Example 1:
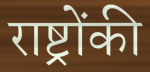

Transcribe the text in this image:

राष्ट्रोंकी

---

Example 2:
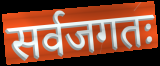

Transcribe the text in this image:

सर्वजगतः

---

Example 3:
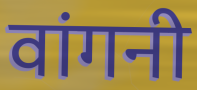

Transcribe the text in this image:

वांगनी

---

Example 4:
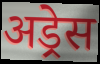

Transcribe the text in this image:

अड्रेस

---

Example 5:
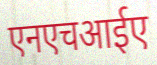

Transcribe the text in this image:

एनएचआईए